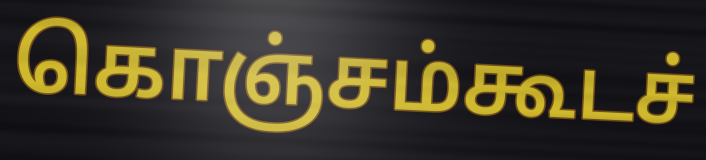
கொஞ்சம்கூடச்